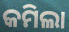
କମିଲା